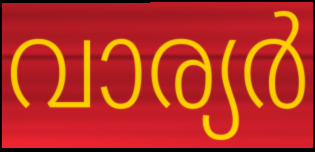
വാര്യർ